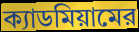
ক্যাডমিয়ামের